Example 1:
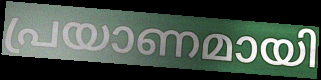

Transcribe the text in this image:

പ്രയാണമായി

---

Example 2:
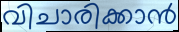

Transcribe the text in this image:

വിചാരിക്കാൻ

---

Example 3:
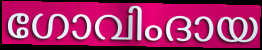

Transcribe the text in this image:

ഗോവിംദായ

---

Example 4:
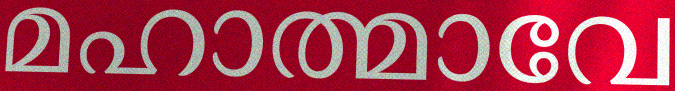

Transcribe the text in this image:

മഹാത്മാവേ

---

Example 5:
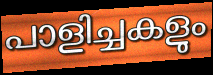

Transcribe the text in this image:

പാളിച്ചകളും